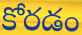
కోరడం